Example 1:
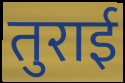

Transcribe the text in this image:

तुराई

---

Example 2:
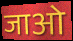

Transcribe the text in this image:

जाओ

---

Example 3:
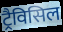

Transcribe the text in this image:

ट्रैविसिल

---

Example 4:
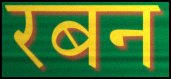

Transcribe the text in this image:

रबन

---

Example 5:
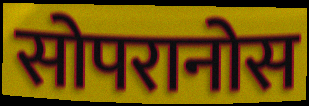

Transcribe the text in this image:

सोपरानोस